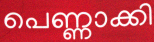
പെണ്ണാക്കി